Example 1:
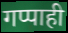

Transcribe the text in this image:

गप्पाही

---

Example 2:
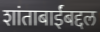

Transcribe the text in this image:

शांताबाईंबद्दल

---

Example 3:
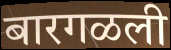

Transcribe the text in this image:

बारगळली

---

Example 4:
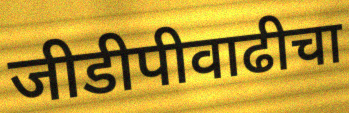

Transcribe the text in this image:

जीडीपीवाढीचा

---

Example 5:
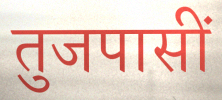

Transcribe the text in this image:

तुजपासीं